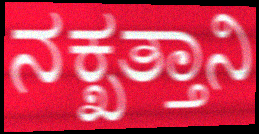
ನಕ್ಖತ್ತಾನಿ